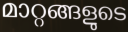
മാറ്റങ്ങളുടെ